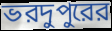
ভরদুপুরের